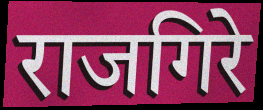
राजगिरे